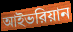
আইভরিয়ান